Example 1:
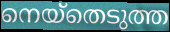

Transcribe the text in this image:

നെയ്തെടുത്ത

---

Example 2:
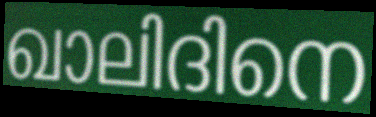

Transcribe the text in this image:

ഖാലിദിനെ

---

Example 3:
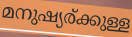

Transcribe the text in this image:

മനുഷ്യര്ക്കുള്ള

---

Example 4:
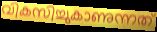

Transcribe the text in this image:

വികസിച്ചുകാണുന്നത്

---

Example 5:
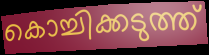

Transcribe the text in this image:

കൊച്ചിക്കടുത്ത്